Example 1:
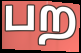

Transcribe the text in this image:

பற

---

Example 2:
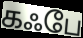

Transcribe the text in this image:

கஃபே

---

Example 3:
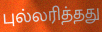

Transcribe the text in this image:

புல்லரித்தது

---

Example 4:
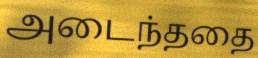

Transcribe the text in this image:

அடைந்ததை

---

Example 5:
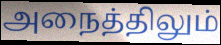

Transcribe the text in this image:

அநைத்திலும்